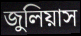
জুলিয়াস